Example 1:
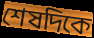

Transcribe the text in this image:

শেষদিকে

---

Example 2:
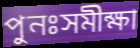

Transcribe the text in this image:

পুনঃসমীক্ষা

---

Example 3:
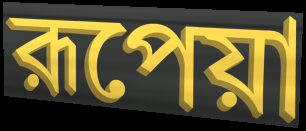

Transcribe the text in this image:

রূপেয়া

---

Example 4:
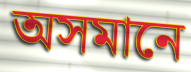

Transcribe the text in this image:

অসমানে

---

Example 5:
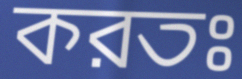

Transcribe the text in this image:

করতঃ